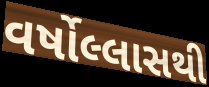
વર્ષોલ્લાસથી